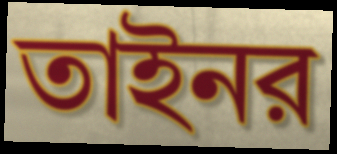
তাইনর